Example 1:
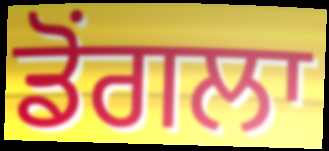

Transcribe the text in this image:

ਡੋਂਗਲਾ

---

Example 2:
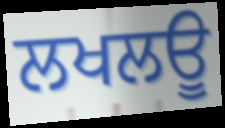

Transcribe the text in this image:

ਲਖਲਊ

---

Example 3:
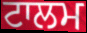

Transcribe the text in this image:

ਟਾਲਮ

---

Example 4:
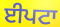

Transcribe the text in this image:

ਈਪਟਾ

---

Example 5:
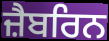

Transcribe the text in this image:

ਜ਼ੈਬਰਿਨ